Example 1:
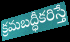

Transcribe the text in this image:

క్రమబద్ధీకరిస్తే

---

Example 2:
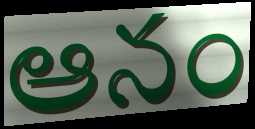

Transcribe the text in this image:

ఆనం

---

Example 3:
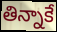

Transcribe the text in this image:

తిన్నాకే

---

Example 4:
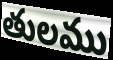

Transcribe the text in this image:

తులము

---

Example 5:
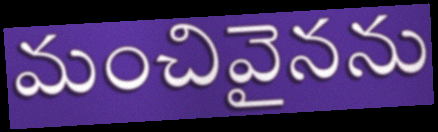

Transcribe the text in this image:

మంచివైనను